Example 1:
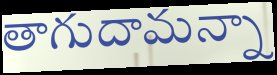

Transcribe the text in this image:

తాగుదామన్నా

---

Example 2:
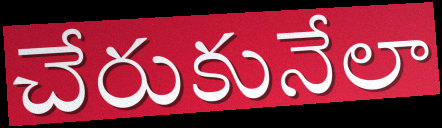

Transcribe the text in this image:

చేరుకునేలా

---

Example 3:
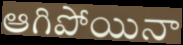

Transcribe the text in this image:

ఆగిపోయినా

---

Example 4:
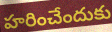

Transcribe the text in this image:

హరించేందుకు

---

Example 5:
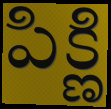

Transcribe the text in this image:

పిక్ణి